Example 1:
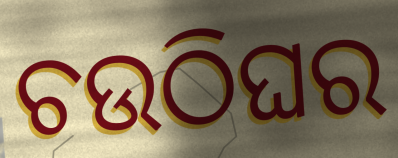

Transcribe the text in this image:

ଚଉଠିଘର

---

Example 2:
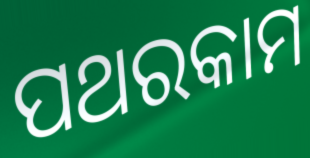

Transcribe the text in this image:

ପଥରକାମ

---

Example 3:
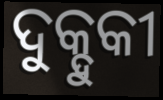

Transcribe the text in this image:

ଦୁକ୍ଦୁକୀ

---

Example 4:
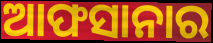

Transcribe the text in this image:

ଆଫସାନାର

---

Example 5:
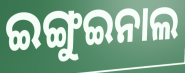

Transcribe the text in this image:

ଇଙ୍ଗୁଇନାଲ